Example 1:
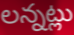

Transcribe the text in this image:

లన్నట్లు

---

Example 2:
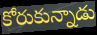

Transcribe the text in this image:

కోరుకున్నాడు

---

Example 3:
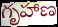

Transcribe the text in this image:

గృహాణ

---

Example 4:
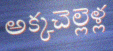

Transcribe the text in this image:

అక్కచెల్లెళ్ల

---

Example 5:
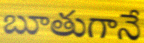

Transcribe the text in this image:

బూతుగానే